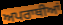
ਅਪਰਾਥੀਆਂ